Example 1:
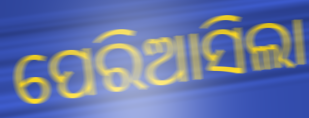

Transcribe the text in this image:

ପେରିଆସିଲା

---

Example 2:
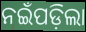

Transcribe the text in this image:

ନଇଁପଡ଼ିଲା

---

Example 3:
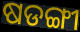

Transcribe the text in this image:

ଷଡଙ୍ଗୀ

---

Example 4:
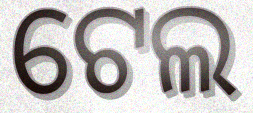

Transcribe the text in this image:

ଟେଲ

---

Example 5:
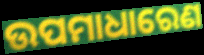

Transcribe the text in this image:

ଉପମାଧାରେଣ